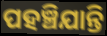
ପହଞ୍ଚିଯାନ୍ତି